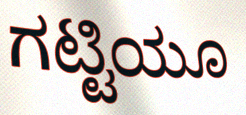
ಗಟ್ಟಿಯೂ